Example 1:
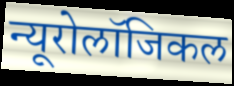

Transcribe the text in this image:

न्यूरोलॉजिकल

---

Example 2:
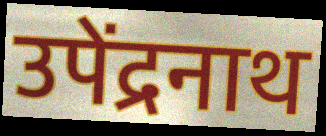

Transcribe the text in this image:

उपेंद्रनाथ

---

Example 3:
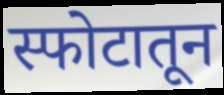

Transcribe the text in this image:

स्फोटातून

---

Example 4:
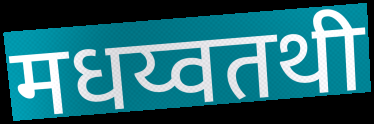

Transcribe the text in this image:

मधय्वतथी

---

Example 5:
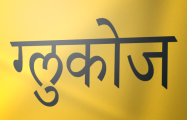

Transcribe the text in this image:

ग्लुकोज